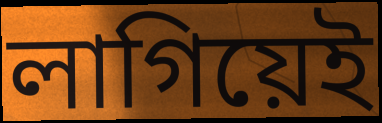
লাগিয়েই